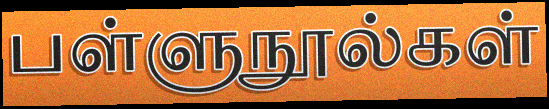
பள்ளுநூல்கள்